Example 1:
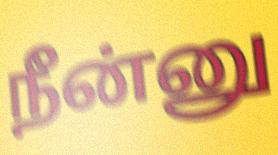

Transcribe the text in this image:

நீன்னு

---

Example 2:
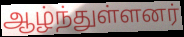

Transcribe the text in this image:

ஆழ்ந்துள்ளனர்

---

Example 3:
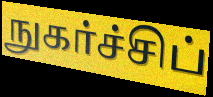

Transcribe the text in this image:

நுகர்ச்சிப்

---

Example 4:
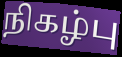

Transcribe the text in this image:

நிகழ்பு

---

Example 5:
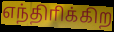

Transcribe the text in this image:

எந்திரிக்கிற